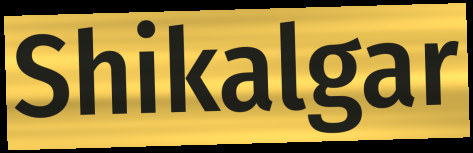
Shikalgar